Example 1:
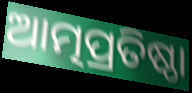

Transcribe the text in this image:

ଆତ୍ମପ୍ରତିଷ୍ଠା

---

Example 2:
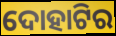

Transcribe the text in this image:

ଦୋହାଟିର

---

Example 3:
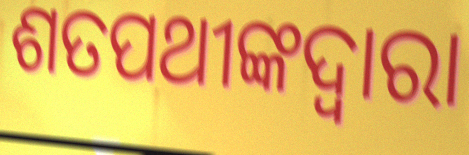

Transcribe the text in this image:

ଶତପଥୀଙ୍କଦ୍ୱାରା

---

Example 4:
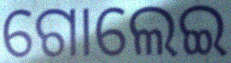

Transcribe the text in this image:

ଗୋଲେଇ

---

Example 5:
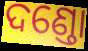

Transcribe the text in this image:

ଦଣ୍ଡୋ